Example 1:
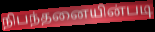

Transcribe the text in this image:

நிபந்தனையின்படி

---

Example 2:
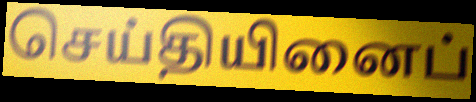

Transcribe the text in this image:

செய்தியினைப்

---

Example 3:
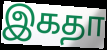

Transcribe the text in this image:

இகதா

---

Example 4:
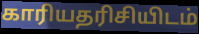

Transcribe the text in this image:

காரியதரிசியிடம்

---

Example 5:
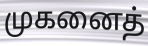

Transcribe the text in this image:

முகனைத்